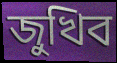
জুখিব